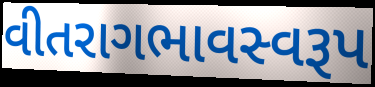
વીતરાગભાવસ્વરૂપ